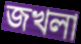
জখলা